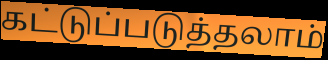
கட்டுப்படுத்தலாம்